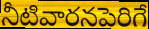
నీటివారనపెరిగే